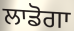
ਲਾਡੋਗਾ